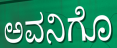
ಅವನಿಗೊ